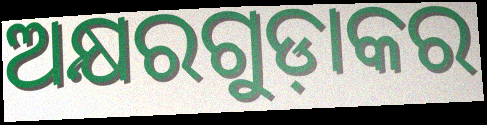
ଅକ୍ଷରଗୁଡ଼ାକର